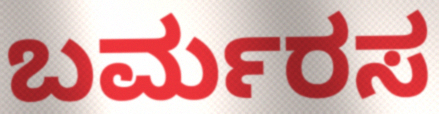
ಬರ್ಮರಸ